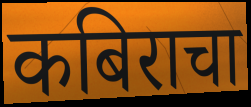
कबिराचा